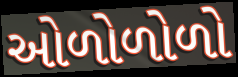
ઓળોળોળો